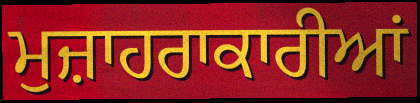
ਮੁਜ਼ਾਹਰਾਕਾਰੀਆਂ